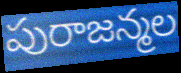
పురాజన్మల